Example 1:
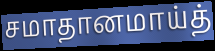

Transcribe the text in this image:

சமாதானமாய்த்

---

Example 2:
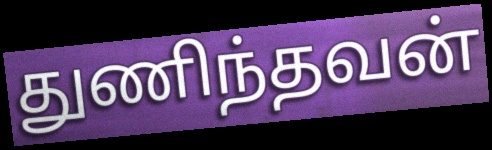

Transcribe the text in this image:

துணிந்தவன்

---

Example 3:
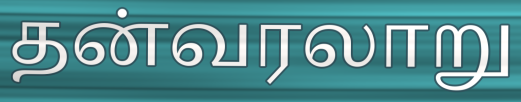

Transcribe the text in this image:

தன்வரலாறு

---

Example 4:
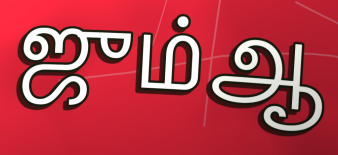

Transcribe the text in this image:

ஜும்ஆ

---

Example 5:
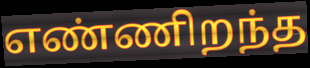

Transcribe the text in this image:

எண்ணிறந்த